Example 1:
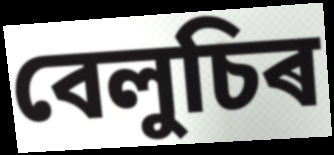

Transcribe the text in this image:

বেলুচিৰ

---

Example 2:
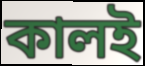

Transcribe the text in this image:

কালই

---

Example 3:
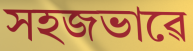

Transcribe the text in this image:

সহজভাৱে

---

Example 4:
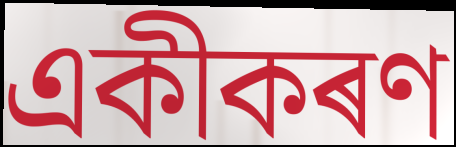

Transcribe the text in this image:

একীকৰণ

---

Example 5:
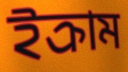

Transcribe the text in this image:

ইক্ৰাম